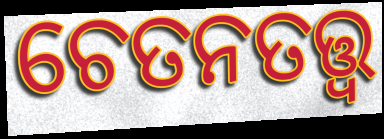
ଚେତନତତ୍ତ୍ୱ